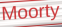
Moorty